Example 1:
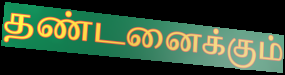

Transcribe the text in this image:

தண்டனைக்கும்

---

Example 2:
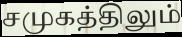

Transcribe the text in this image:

சமுகத்திலும்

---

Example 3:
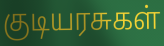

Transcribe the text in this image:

குடியரசுகள்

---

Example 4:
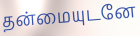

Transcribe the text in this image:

தன்மையுடனே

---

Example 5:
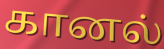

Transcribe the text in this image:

கானல்